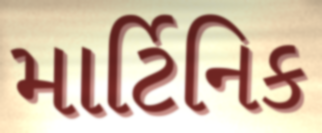
માર્ટિનિક